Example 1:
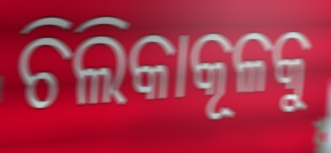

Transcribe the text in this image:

ଚିଲିକାକୂଳକୁ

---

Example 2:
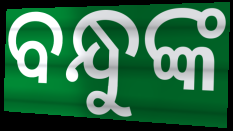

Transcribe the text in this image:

ବନ୍ଧୁଙ୍କ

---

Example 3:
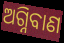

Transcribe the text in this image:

ଅଗ୍ନିବାଣ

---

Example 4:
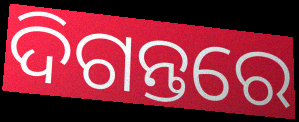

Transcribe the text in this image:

ଦିଗନ୍ତରେ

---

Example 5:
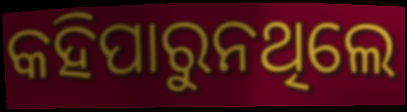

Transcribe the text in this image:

କହିପାରୁନଥିଲେ